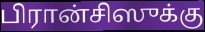
பிரான்சிஸுக்கு